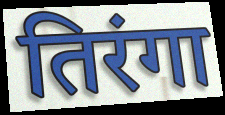
तिरंगा